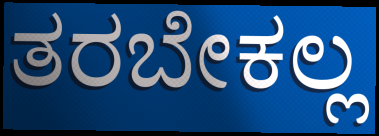
ತರಬೇಕಲ್ಲ